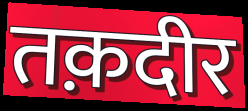
तक़दीर